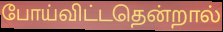
போய்விட்டதென்றால்